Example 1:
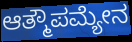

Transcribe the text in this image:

ಆತ್ಮೌಪಮ್ಯೇನ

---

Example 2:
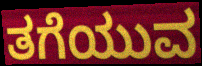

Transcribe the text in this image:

ತಗೆಯುವ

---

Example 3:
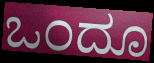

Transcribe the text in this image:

ಒಂದೂ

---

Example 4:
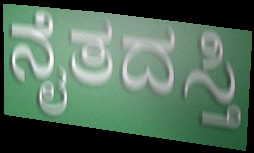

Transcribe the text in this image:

ನೈತದಸ್ತಿ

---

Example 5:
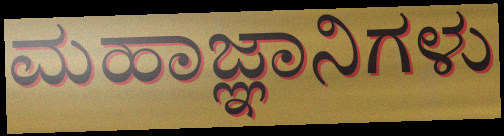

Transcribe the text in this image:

ಮಹಾಜ್ಞಾನಿಗಳು